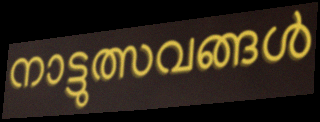
നാട്ടുത്സവങ്ങൾ